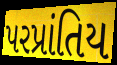
પરપ્રાંતિય